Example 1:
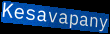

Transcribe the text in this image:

Kesavapany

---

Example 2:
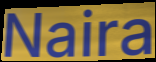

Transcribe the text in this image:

Naira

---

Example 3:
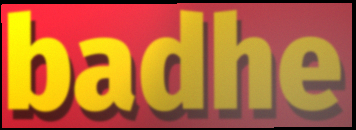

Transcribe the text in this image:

badhe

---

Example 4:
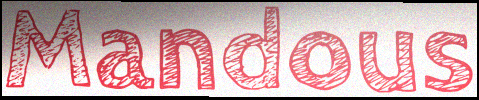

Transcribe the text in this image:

Mandous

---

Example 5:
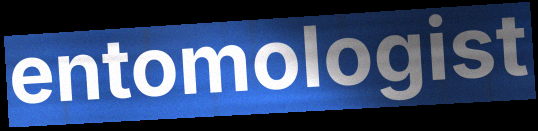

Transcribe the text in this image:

entomologist